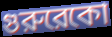
গুরুরেকো